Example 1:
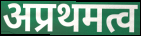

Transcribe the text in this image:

अप्रथमत्व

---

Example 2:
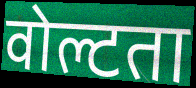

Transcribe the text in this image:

वोल्टता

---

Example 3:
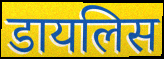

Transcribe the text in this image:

डायलिस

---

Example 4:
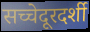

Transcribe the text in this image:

सच्चेदूरदर्शी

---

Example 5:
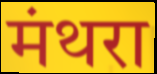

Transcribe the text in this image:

मंथरा